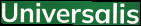
Universalis